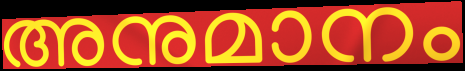
അനുമാനം